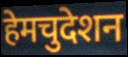
हेमचुदेशन